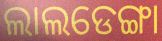
ଲାଲଡେଙ୍ଗା